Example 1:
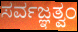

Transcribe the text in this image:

ಸರ್ವಜ್ಞತ್ವಂ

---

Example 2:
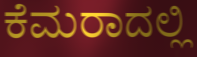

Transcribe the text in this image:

ಕೆಮರಾದಲ್ಲಿ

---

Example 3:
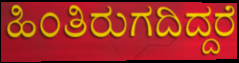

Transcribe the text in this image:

ಹಿಂತಿರುಗದಿದ್ದರೆ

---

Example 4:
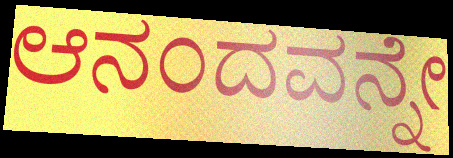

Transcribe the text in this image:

ಆನಂದವನ್ನೇ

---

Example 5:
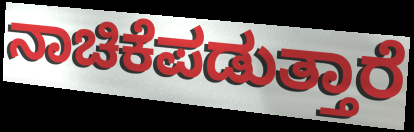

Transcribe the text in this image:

ನಾಚಿಕೆಪಡುತ್ತಾರೆ